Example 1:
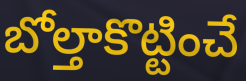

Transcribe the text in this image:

బోల్తాకొట్టించే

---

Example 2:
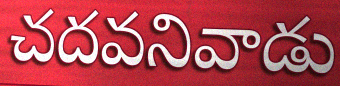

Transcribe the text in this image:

చదవనివాడు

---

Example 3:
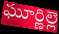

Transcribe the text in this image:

ఘూర్ణిల్లె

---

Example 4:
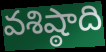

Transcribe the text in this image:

వశిష్ఠాది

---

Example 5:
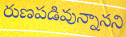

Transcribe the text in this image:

రుణపడివున్నానని